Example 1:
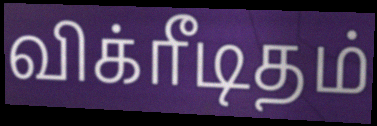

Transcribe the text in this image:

விக்ரீடிதம்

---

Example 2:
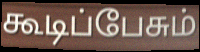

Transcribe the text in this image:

கூடிப்பேசும்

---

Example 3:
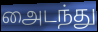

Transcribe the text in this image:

அைடந்து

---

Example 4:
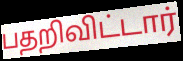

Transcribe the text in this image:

பதறிவிட்டார்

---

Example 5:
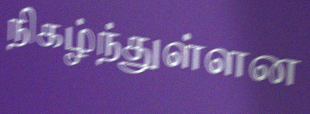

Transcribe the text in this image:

நிகழ்ந்துள்ளன